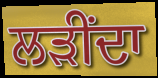
ਲੜੀਂਦਾ